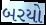
બરયો